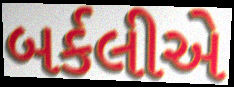
બર્કલીએ